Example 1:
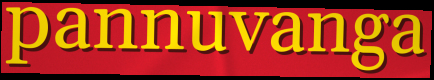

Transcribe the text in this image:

pannuvanga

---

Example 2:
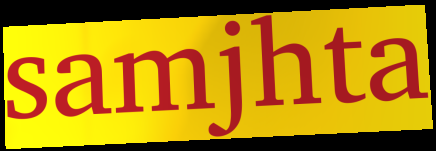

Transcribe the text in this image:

samjhta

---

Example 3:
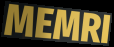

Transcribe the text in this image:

MEMRI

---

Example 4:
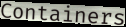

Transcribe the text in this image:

Containers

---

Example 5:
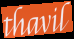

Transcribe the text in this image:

thavil